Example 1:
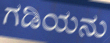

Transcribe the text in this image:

ಗಡಿಯನು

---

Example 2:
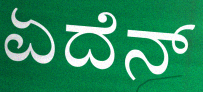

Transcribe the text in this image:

ಏದೆನ್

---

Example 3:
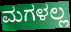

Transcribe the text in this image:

ಮಗಳಲ್ಲ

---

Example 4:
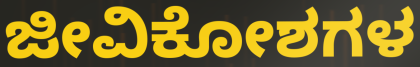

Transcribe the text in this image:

ಜೀವಿಕೋಶಗಳ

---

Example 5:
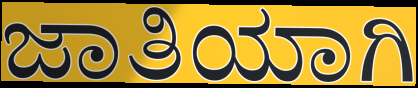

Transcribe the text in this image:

ಜಾತಿಯಾಗಿ